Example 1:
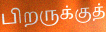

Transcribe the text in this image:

பிறருக்குத்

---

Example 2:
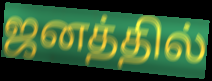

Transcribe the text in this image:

ஜனத்தில்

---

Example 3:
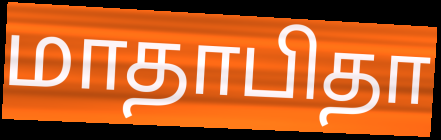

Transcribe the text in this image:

மாதாபிதா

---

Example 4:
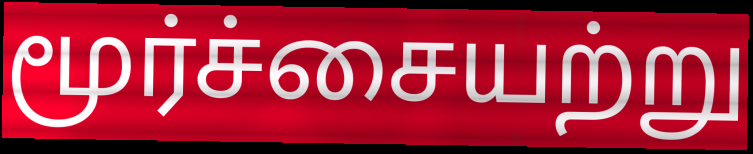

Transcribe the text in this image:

மூர்ச்சையற்று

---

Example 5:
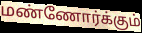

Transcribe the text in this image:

மண்ணோர்க்கும்